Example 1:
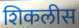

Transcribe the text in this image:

शिकलीस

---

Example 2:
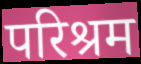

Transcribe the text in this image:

परिश्रम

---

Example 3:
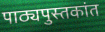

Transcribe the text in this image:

पाठ्यपुस्तकांत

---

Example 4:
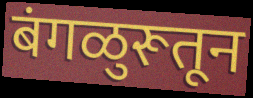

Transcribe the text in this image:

बंगळुरूतून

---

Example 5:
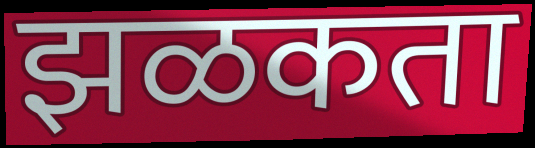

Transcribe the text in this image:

झळकता